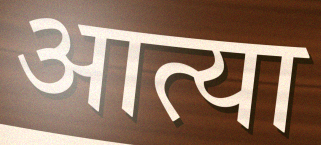
आत्या